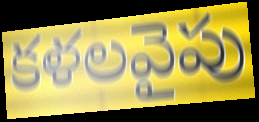
కళలవైపు